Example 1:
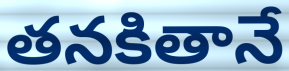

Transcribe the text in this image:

తనకితానే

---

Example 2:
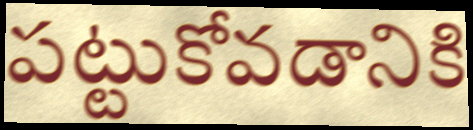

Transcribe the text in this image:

పట్టుకోవడానికి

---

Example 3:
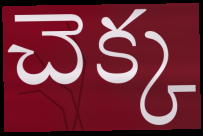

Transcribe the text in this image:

చెక్క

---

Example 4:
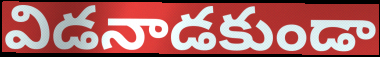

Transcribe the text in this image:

విడనాడకుండా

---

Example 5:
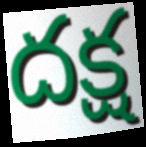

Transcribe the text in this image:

దక్ష